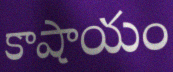
కాషాయం